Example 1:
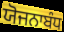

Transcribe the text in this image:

ਯੋਜਨਾਬੰਧ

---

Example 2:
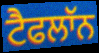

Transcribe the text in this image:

ਟੈਫਲਾੱਨ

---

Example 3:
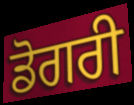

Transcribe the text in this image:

ਡੋਗਰੀ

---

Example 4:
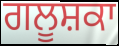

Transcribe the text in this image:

ਗਲੂਸ਼ਕਾ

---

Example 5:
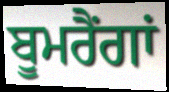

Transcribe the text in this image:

ਬੂਮਰੈਂਗਾਂ